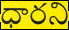
ధారని